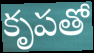
కృపతో